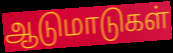
ஆடுமாடுகள்